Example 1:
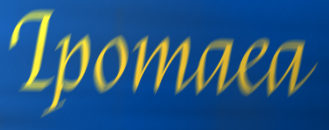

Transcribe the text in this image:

Ipomaea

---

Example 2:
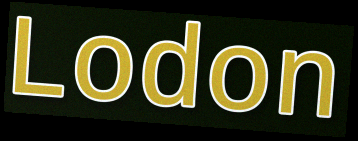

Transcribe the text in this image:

Lodon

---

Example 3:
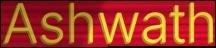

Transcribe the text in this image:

Ashwath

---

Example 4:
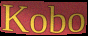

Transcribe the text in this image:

Kobo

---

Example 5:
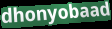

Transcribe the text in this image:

dhonyobaad